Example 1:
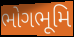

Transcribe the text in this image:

ભોગભૂમિ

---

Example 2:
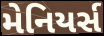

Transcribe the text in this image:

મેનિયર્સ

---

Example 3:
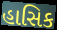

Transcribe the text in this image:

હાસિક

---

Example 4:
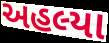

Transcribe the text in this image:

અહલ્યા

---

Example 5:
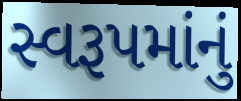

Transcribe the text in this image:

સ્વરૂપમાંનું